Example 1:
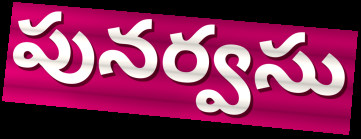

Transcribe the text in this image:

పునర్వసు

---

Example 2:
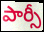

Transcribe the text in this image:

పార్సీ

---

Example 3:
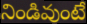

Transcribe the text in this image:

నిండివుంటే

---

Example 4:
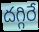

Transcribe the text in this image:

దగ్గిరే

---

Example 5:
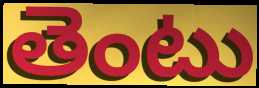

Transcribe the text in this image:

తెంటు